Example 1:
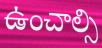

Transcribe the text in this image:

ఉంచాల్సి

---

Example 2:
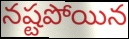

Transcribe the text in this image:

నష్టపోయిన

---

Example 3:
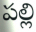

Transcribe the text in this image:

పల్లి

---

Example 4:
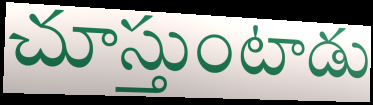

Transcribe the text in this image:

చూస్తుంటాడు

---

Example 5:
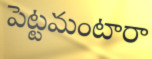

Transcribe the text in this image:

పెట్టమంటారా